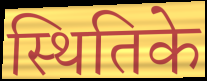
स्थितिके